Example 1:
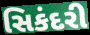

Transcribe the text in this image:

સિકંદરી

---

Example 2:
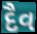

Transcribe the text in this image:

દૈવ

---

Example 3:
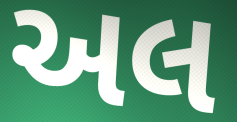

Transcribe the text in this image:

અલ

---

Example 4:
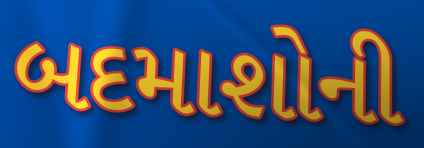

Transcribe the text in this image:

બદમાશોની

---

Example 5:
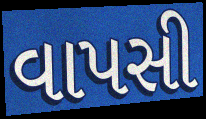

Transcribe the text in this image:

વાપસી